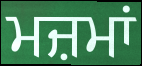
ਮਜ਼ਮਾਂ